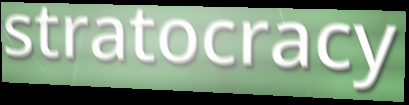
stratocracy